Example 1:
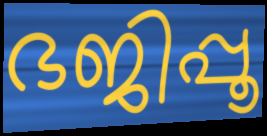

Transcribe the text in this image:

ഭജിപ്പൂ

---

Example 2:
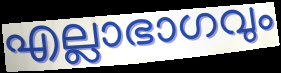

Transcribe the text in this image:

എല്ലാഭാഗവും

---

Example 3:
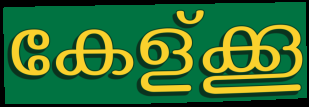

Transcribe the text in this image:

കേള്ക്കൂ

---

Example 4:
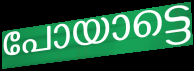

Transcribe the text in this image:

പോയാട്ടെ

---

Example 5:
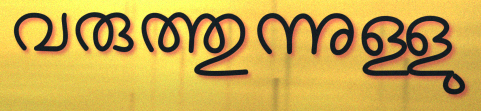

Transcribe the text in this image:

വരുത്തുന്നുള്ളു